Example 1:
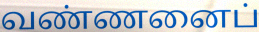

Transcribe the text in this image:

வண்ணனைப்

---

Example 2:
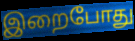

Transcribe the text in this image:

இறைபோது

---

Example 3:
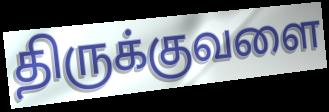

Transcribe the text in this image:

திருக்குவளை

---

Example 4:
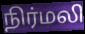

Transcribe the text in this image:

நிர்மலி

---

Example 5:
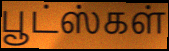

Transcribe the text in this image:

பூட்ஸ்கள்